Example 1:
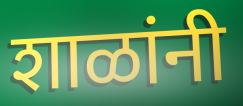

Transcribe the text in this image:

शाळांनी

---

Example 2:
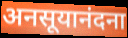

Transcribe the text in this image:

अनसूयानंदना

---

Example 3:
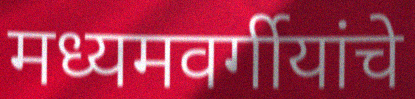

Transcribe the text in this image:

मध्यमवर्गीयांचे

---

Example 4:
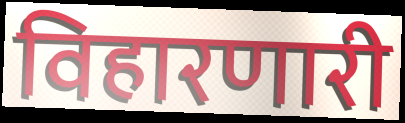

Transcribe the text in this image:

विहारणारी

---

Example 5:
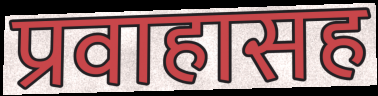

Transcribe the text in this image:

प्रवाहासह